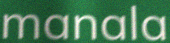
manala